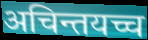
अचिन्तयच्च